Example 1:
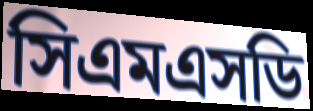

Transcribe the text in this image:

সিএমএসডি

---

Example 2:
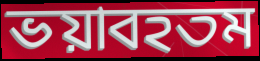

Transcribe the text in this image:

ভয়াবহতম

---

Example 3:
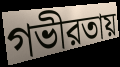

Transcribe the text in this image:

গভীরতায়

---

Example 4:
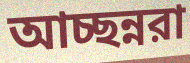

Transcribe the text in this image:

আচ্ছন্নরা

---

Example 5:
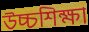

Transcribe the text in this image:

উচ্চশিক্ষা